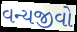
વન્યજીવો